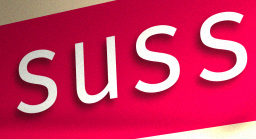
suss